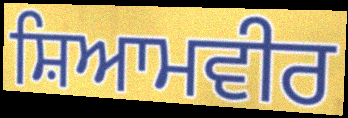
ਸ਼ਿਆਮਵੀਰ